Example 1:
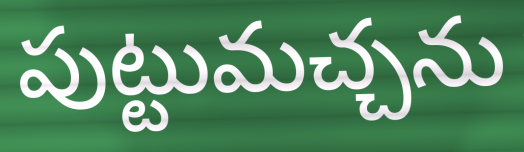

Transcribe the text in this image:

పుట్టుమచ్చను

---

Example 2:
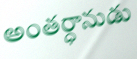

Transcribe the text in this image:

అంతర్ధానుడు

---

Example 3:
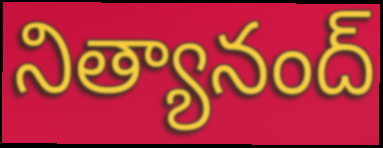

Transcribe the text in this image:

నిత్యానంద్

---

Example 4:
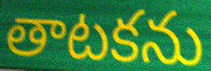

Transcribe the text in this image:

తాటకను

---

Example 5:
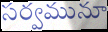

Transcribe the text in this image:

సర్వమునూ